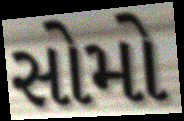
સોમો